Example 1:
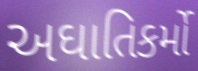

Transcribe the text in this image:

અઘાતિકર્મો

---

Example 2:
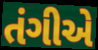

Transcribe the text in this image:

તંગીએ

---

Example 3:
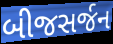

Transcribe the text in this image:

બીજસર્જન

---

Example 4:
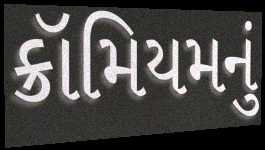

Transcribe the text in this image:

ક્રૉમિયમનું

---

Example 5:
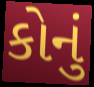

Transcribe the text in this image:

કોનું